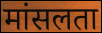
मांसलता